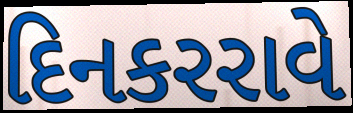
દિનકરરાવે